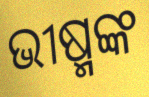
ଭୀଷ୍ମଙ୍କ